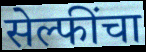
सेल्फींचा